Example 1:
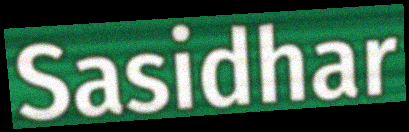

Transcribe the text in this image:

Sasidhar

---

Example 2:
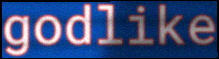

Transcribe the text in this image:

godlike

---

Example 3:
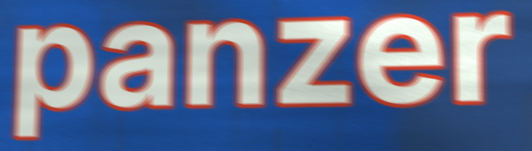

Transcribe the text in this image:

panzer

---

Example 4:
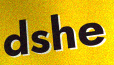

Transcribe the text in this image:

dshe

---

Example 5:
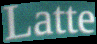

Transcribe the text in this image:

Latte